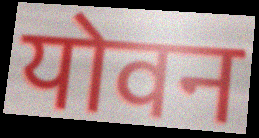
योवन